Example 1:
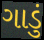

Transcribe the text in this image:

ગાડું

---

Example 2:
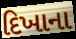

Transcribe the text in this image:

દિખાના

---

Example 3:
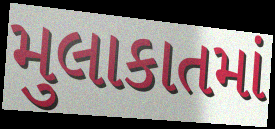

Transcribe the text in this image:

મુલાકાતમાં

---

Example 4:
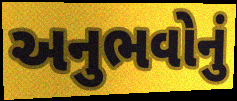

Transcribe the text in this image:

અનુભવોનું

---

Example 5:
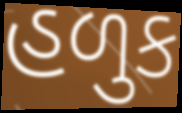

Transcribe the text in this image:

હળુક